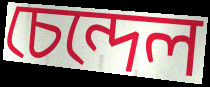
চেন্দেল